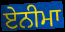
ਏਨੀਮਾ